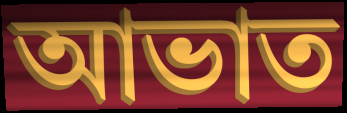
আভাত